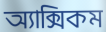
অ্যাক্সিকম